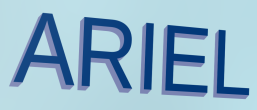
ARIEL